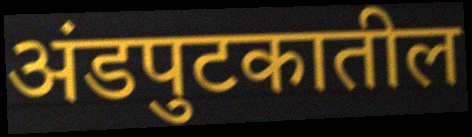
अंडपुटकातील